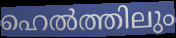
ഹെൽത്തിലും